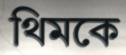
থিমকে